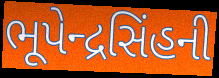
ભૂપેન્દ્રસિંહની